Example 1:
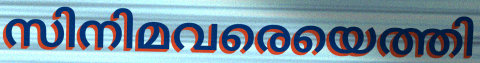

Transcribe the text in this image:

സിനിമവരെയെത്തി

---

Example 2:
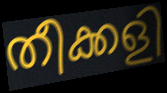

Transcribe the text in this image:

തീക്കളി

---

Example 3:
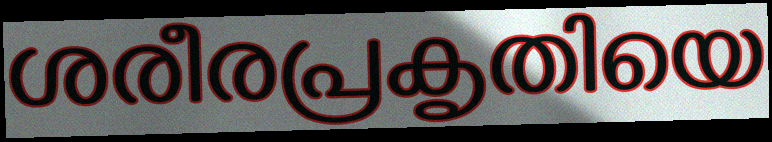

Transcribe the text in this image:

ശരീരപ്രകൃതിയെ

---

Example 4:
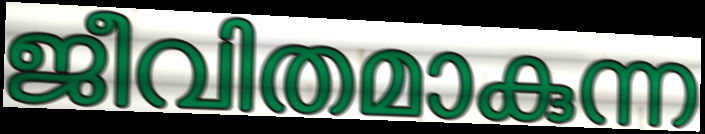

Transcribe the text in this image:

ജീവിതമാകുന്ന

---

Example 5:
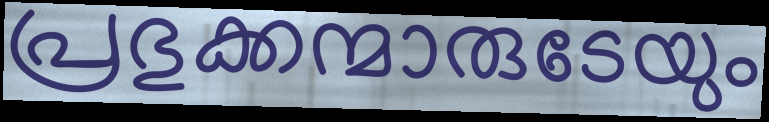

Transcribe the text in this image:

പ്രഭുക്കന്മാരുടേയും